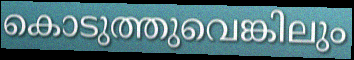
കൊടുത്തുവെങ്കിലും